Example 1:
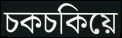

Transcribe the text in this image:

চকচকিয়ে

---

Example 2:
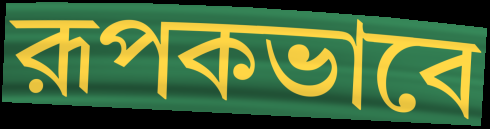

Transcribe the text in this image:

রূপকভাবে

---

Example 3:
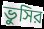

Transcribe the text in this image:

ভুসির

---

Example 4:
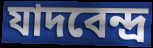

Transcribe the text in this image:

যাদবেন্দ্র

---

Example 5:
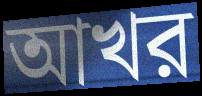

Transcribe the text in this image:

আখর